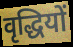
वृद्धियों